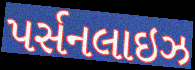
પર્સનલાઇઝ